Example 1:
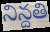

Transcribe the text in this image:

నిన్దతి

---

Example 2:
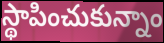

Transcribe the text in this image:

స్థాపించుకున్నాం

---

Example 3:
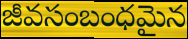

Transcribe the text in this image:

జీవసంబంధమైన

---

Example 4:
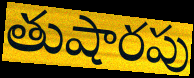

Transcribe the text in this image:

తుషారపు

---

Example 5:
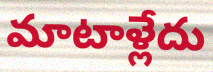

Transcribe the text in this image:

మాటాళ్లేదు